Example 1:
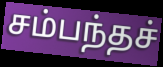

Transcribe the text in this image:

சம்பந்தச்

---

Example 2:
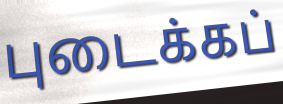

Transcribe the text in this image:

புடைக்கப்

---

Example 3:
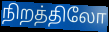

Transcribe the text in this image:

நிறத்திலோ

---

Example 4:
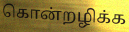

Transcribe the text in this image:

கொன்றழிக்க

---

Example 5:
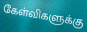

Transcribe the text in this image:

கேள்விகளுக்கு